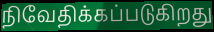
நிவேதிக்கப்படுகிறது